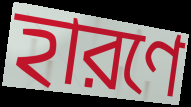
হারণে